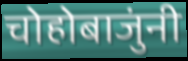
चोहोबाजुंनी